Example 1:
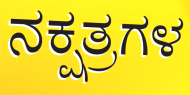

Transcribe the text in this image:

ನಕ್ಷತ್ರಗಳ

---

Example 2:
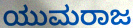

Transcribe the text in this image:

ಯುಮರಾಜ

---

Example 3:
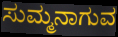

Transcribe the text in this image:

ಸುಮ್ಮನಾಗುವ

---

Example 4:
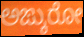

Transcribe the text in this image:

ಅಙ್ಕುರೋ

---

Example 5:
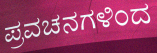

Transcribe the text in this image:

ಪ್ರವಚನಗಳಿಂದ